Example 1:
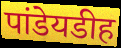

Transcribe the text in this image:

पांडेयडीह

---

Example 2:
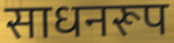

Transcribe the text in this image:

साधनरूप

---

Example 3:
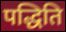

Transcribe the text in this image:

पद्धिति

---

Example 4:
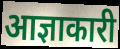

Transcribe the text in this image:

आज्ञाकारी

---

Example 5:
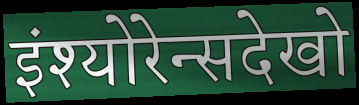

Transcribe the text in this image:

इंश्योरेन्सदेखो